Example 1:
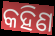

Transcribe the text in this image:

କହିଣ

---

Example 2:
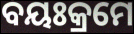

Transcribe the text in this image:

ବୟଃକ୍ରମେ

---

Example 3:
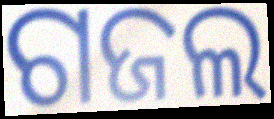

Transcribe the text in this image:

ଗଜଲ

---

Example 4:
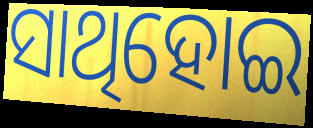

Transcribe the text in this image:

ସାଥିହୋଇ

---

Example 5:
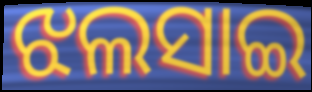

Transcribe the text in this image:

ଝଲସାଇ